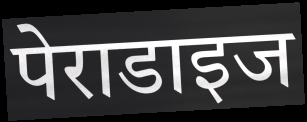
पेराडाइज